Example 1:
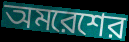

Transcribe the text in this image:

অমরেশের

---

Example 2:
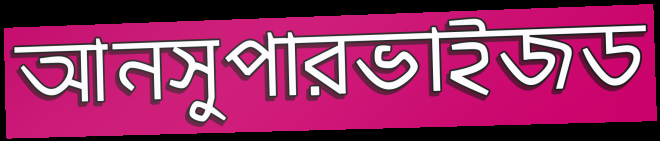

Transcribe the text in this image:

আনসুপারভাইজড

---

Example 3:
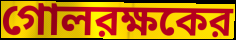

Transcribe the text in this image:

গোলরক্ষকের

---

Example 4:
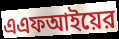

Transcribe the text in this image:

এএফআইয়ের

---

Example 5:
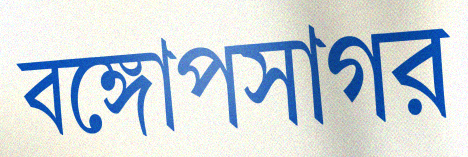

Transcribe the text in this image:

বঙ্গোপসাগর